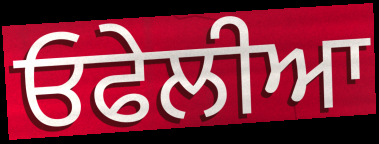
ਓਫੇਲੀਆ